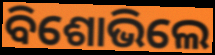
ବିଶୋଭିଲେ